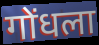
गोंधला